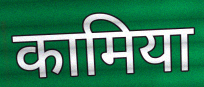
कामिया